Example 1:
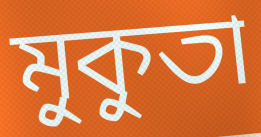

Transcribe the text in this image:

মুকুতা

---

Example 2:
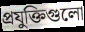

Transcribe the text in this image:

প্রযুক্তিগুলো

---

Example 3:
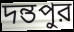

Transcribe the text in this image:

দন্তপুর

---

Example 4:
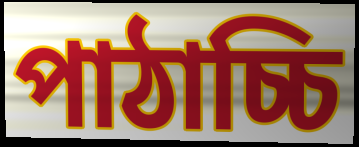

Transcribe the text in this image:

পাঠাচ্চি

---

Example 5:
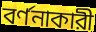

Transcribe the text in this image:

বর্ণনাকারী